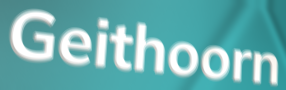
Geithoorn